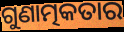
ଗୁଣାତ୍ମକତାର